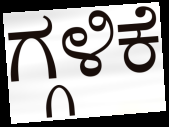
ಗ್ಗಳಿಕೆ